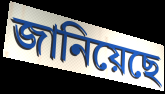
জানিয়েছে